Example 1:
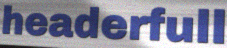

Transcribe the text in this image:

headerfull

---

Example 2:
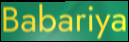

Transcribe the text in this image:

Babariya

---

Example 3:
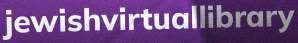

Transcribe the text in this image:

jewishvirtuallibrary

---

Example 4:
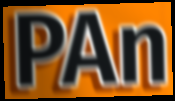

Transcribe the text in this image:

PAn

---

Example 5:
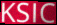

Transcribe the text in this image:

KSIC